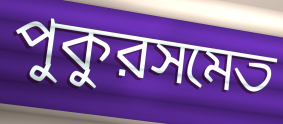
পুকুরসমেত